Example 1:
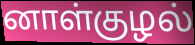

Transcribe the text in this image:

னாள்குழல்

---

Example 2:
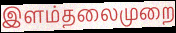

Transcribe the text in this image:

இளம்தலைமுறை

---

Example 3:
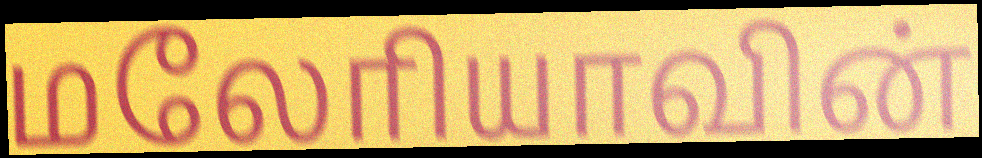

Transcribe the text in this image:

மலேரியாவின்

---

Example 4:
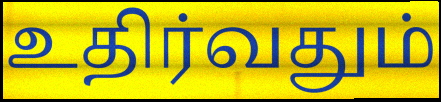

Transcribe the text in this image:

உதிர்வதும்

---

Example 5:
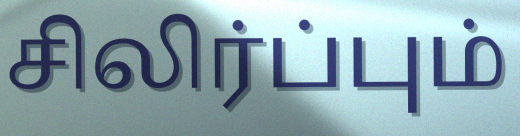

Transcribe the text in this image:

சிலிர்ப்பும்